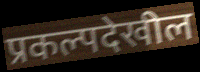
प्रकल्पदेखील